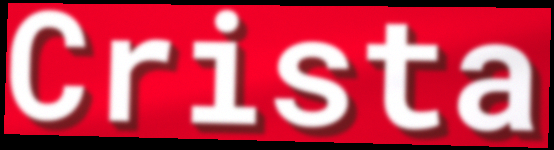
Crista